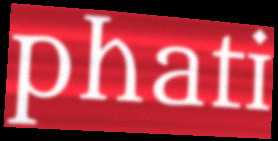
phati